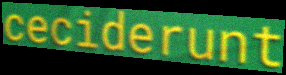
ceciderunt